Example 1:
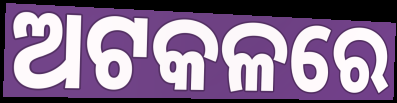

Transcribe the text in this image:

ଅଟକଳରେ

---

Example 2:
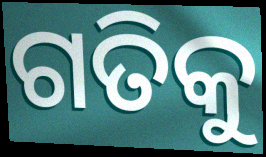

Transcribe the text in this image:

ଗତିକୁ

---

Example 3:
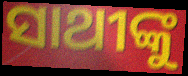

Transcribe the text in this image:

ସାଥୀଙ୍କୁ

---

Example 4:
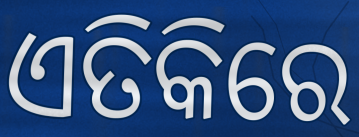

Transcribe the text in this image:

ଏତିକିରେ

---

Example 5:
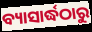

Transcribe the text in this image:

ବ୍ୟାସାର୍ଦ୍ଧଠାରୁ